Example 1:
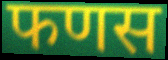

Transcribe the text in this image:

फणस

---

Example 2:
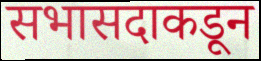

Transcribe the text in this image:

सभासदाकडून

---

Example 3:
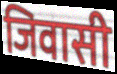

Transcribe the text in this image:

जिवासी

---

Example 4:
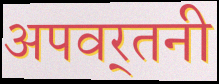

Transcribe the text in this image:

अपवर्तनी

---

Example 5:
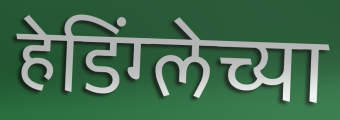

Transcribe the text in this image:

हेडिंग्लेच्या